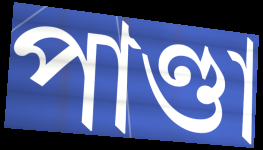
পাণ্ডা